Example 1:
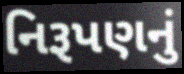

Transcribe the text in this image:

નિરૂપણનું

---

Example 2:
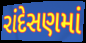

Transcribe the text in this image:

રાંદેસણમાં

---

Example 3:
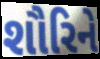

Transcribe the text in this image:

શૌરિને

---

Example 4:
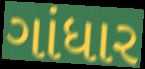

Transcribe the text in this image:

ગાંધાર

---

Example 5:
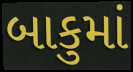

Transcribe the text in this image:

બાકુમાં